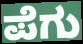
ಪೆಗು